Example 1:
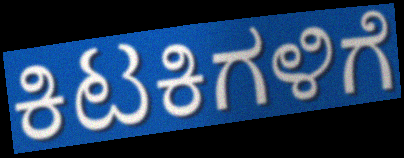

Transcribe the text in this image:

ಕಿಟಕಿಗಳಿಗೆ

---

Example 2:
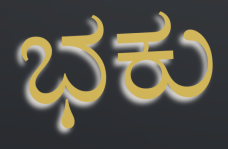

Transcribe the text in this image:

ಭಕು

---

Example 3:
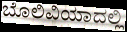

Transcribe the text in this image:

ಬೊಲಿವಿಯಾದಲ್ಲಿ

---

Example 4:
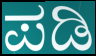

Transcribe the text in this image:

ಪಡಿ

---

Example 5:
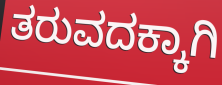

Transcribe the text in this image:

ತರುವದಕ್ಕಾಗಿ